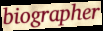
biographer